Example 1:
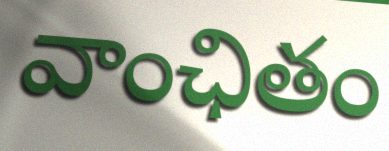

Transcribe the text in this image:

వాంఛితం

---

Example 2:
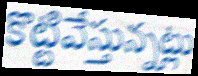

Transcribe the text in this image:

కొట్టివేస్తున్నట్లు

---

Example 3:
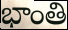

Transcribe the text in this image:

భాంతి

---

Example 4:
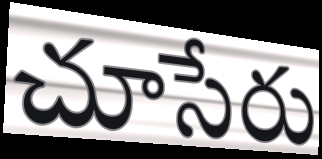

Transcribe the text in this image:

చూసేరు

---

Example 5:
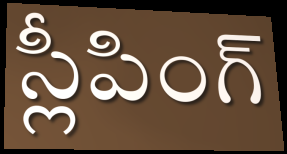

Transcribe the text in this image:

స్లీపింగ్